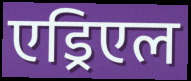
एड्रिएल